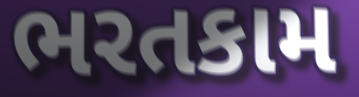
ભરતકામ